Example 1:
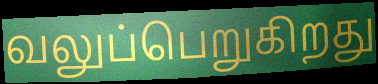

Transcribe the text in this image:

வலுப்பெறுகிறது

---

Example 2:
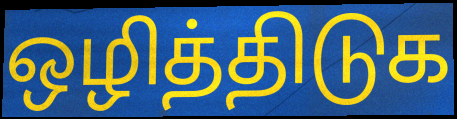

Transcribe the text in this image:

ஒழித்திடுக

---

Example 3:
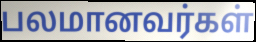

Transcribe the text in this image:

பலமானவர்கள்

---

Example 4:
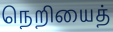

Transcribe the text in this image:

நெறியைத்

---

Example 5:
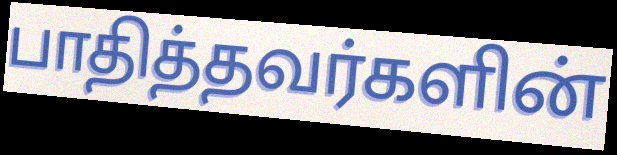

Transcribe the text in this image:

பாதித்தவர்களின்